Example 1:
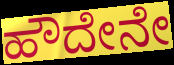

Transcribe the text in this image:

ಹೌದೇನೇ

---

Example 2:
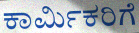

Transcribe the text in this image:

ಕಾರ್ಮಿಕರಿಗೆ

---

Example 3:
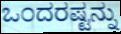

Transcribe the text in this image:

ಒಂದರಷ್ಟನ್ನು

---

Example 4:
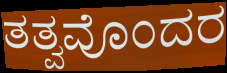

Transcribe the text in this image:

ತತ್ವವೊಂದರ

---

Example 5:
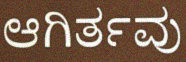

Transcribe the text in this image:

ಆಗಿರ್ತವು